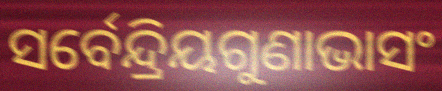
ସର୍ବେନ୍ଦ୍ରିୟଗୁଣାଭାସଂ